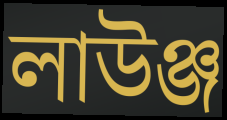
লাউঞ্জ